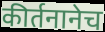
कीर्तनानेच